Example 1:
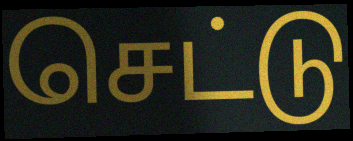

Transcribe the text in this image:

செட்டு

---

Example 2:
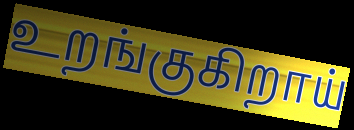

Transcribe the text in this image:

உறங்குகிறாய்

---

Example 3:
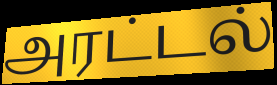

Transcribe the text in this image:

அரட்டல்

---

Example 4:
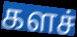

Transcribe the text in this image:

களச்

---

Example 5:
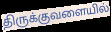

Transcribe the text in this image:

திருக்குவளையில்